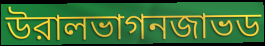
উরালভাগনজাভড